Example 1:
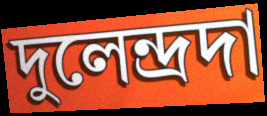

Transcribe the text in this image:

দুলেন্দ্রদা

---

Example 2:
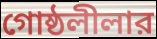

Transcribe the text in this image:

গোষ্ঠলীলার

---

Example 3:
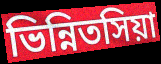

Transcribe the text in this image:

ভিন্নিতসিয়া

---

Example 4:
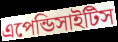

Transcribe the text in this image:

এপেন্ডিসাইটিস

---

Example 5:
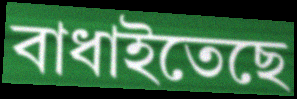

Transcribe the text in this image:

বাধাইতেছে